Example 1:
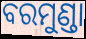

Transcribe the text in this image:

ବରମୁଣ୍ଡା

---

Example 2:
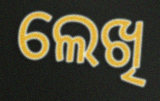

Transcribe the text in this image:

ଲେଖି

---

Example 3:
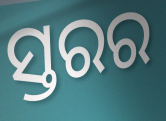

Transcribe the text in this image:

ସ୍ତରର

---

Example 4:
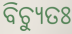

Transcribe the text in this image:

ବିଚ୍ୟୁତଃ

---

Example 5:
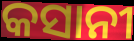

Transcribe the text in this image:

କସାନୀ